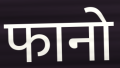
फानो